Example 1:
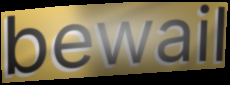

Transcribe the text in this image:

bewail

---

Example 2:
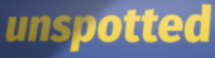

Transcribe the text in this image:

unspotted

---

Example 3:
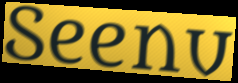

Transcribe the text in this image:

Seenu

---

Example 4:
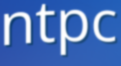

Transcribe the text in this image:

ntpc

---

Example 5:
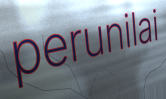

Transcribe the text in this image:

perunilai